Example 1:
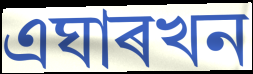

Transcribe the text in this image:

এঘাৰখন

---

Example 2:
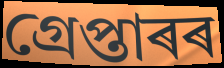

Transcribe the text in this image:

গ্ৰেপ্তাৰৰ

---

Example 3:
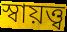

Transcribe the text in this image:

স্বায়ত্ত্ব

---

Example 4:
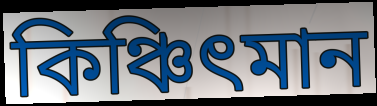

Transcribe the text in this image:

কিঞ্চিৎমান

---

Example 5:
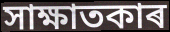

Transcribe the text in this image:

সাক্ষাতকাৰ